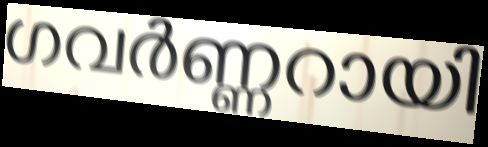
ഗവർണ്ണറായി